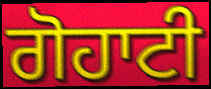
ਗੋਹਾਟੀ